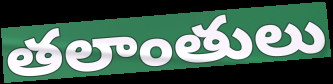
తలాంతులు